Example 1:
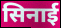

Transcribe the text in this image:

सिनाई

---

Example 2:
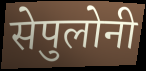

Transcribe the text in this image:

सेपुलोनी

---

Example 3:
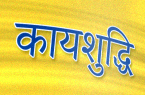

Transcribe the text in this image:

कायशुद्धि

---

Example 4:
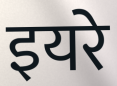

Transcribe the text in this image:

इयरे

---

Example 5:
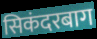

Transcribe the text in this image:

सिकंदरबाग